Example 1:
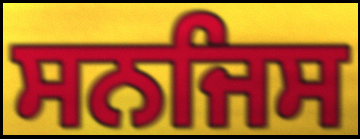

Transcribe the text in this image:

ਸਨਜਿਸ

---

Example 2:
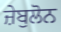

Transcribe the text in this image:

ਜ਼ੇਬੁਲੋਨ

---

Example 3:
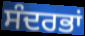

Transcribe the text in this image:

ਸੰਦਰਭਾਂ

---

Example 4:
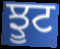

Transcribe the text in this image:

ਝੂਟ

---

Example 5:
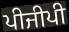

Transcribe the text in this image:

ਪੀਜੀਪੀ